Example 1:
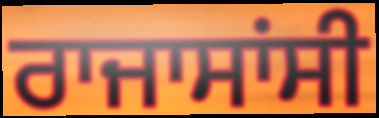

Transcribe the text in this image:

ਰਾਜਾਸਾਂਸੀ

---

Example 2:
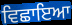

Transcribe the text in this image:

ਵਿਛਾਇਆ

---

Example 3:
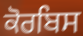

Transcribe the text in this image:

ਕੋਰਬਿਸ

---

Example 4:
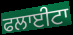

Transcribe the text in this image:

ਫਲਾਈਟਾ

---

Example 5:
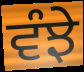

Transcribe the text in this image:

ਵੰਝੇ